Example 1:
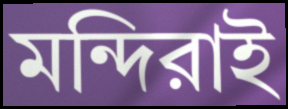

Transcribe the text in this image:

মন্দিরাই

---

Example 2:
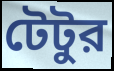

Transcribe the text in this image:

টেটুর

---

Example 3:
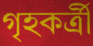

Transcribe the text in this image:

গৃহকর্ত্রী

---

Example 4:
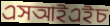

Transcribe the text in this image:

এসআইএইচ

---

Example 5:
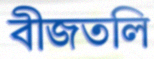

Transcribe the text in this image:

বীজতলি